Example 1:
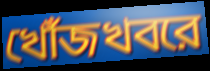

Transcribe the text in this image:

খোঁজখবরে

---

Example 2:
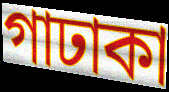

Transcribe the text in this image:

গাঢাকা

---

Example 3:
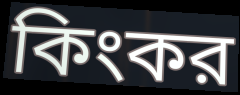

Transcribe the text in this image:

কিংকর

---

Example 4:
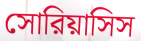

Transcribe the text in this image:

সোরিয়াসিস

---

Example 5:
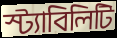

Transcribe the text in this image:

স্ট্যাবিলিটি